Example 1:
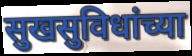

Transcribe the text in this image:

सुखसुविधांच्या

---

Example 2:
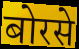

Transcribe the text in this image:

बोरसे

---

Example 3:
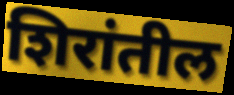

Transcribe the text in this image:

शिरांतील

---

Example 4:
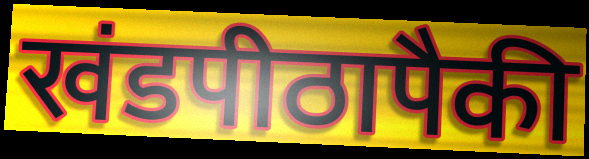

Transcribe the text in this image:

खंडपीठापैकी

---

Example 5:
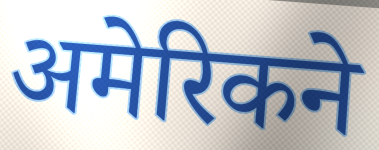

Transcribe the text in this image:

अमेरिकने